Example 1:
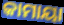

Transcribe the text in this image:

କାମାୟା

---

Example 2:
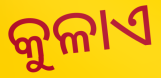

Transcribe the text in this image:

କୁଳାଏ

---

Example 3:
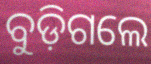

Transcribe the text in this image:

ବୁଡ଼ିଗଲେ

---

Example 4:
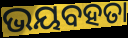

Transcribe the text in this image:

ଭୟବହତା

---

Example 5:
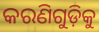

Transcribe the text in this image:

କରଣିଗୁଡ଼ିକୁ